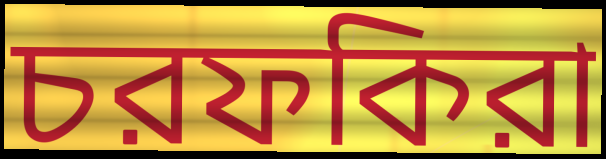
চরফকিরা